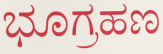
ಭೂಗ್ರಹಣ